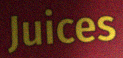
Juices